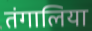
तंगालिया